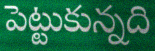
పెట్టుకున్నది